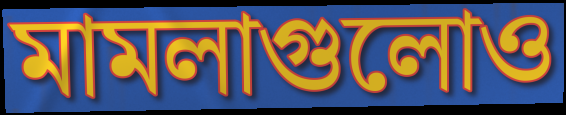
মামলাগুলোও